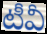
టీవీ